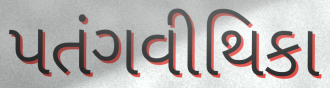
પતંગવીથિકા